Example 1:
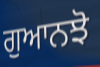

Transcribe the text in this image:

ਗੁਆਨਝੋ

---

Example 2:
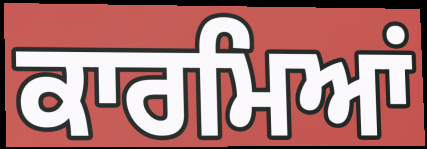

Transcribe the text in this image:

ਕਾਰਮਿਆਂ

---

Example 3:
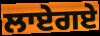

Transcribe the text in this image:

ਲਾਏਗਏ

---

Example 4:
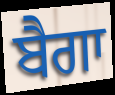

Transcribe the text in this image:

ਬੈਗਾ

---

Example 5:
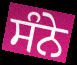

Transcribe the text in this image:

ਸੰਨੇ